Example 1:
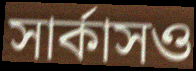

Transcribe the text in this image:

সার্কাসও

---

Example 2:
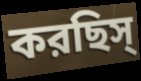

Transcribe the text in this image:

করছিস্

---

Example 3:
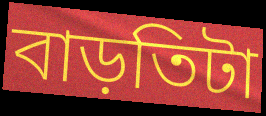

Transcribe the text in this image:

বাড়তিটা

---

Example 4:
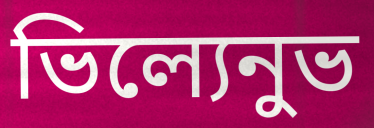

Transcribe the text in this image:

ভিল্যেনুভ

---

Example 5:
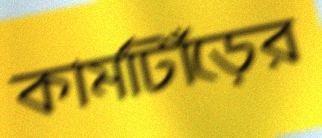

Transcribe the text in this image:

কার্মাটাঁড়ের